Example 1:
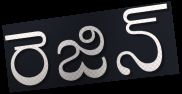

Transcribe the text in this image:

రెజిన్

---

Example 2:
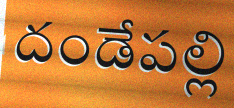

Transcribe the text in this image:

దండేపల్లి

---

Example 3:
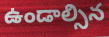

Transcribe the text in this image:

ఉండాల్సిన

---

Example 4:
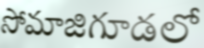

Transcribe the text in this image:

సోమాజిగూడలో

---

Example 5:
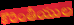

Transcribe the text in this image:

కొరింతీయుల